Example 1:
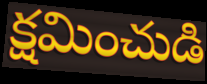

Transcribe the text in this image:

క్షమించుడి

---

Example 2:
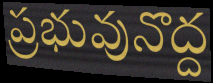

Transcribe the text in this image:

ప్రభువునొద్ద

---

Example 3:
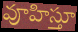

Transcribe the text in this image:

వూహిస్తూ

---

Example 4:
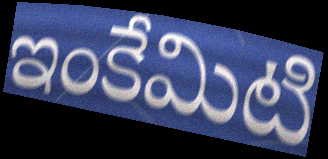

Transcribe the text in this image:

ఇంకేమిటి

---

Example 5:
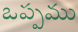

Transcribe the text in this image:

ఒప్పము